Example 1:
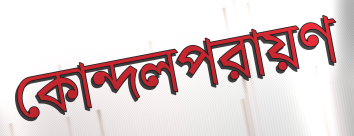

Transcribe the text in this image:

কোন্দলপরায়ণ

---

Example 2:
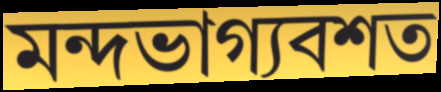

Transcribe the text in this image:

মন্দভাগ্যবশত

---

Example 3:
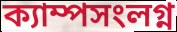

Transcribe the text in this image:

ক্যাম্পসংলগ্ন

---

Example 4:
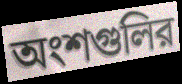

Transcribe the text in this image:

অংশগুলির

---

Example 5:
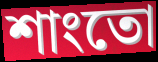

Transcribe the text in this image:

শাংতো